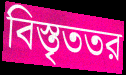
বিস্তৃততর